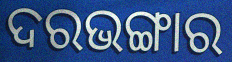
ଦରଭଙ୍ଗାର